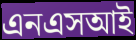
এনএসআই